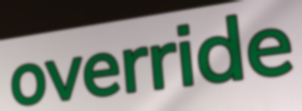
override